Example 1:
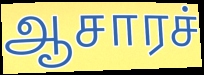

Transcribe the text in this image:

ஆசாரச்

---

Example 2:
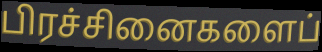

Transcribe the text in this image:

பிரச்சினைகளைப்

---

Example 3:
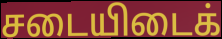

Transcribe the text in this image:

சடையிடைக்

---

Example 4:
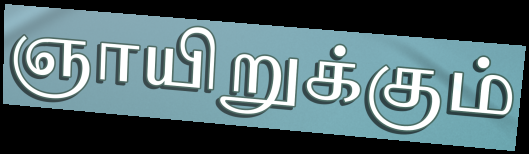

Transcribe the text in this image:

ஞாயிறுக்கும்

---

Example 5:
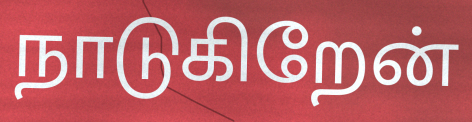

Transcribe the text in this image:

நாடுகிறேன்